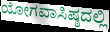
ಯೋಗವಾಸಿಷ್ಠದಲ್ಲಿ